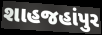
શાહજહાંપુર